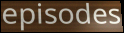
episodes